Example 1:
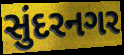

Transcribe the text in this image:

સુંદરનગર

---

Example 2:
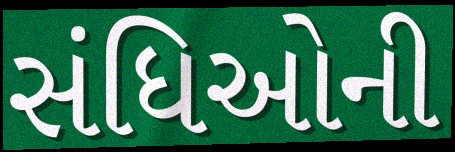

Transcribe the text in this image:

સંધિઓની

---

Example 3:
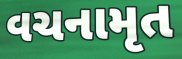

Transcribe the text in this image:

વચનામૃત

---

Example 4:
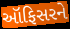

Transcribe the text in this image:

ઑફિસરને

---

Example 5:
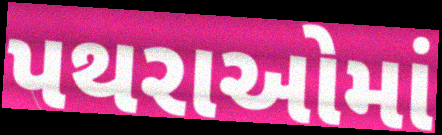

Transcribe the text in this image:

પથરાઓમાં